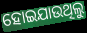
ହୋଇଯାଉଥିଲୁ